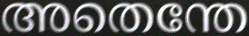
അതെന്തേ